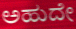
ಅಹುದೇ